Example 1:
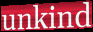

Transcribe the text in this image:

unkind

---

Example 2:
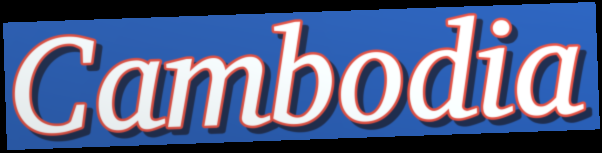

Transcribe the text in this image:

Cambodia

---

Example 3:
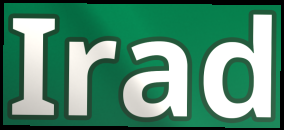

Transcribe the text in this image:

Irad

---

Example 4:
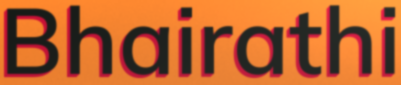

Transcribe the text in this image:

Bhairathi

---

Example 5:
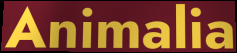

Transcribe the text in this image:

Animalia